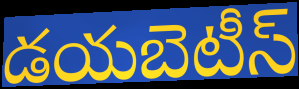
డయబెటీస్